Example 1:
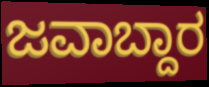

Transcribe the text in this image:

ಜವಾಬ್ದಾರ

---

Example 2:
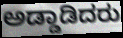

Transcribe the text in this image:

ಅಡ್ಡಾಡಿದರು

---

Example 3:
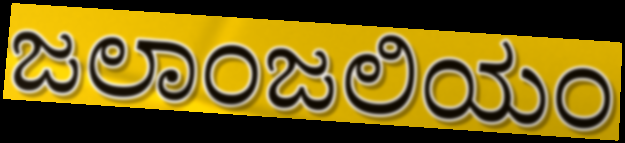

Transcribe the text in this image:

ಜಲಾಂಜಲಿಯಂ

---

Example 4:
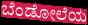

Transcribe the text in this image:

ಬೆಂಡೋಲೆಯ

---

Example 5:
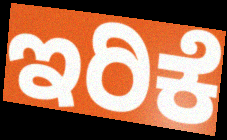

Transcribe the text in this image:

ಇರಿಕೆ